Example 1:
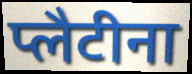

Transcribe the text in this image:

प्लैटीना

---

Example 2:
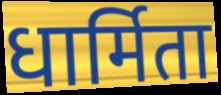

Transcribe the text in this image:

धार्मिता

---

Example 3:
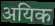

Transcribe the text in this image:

अयिक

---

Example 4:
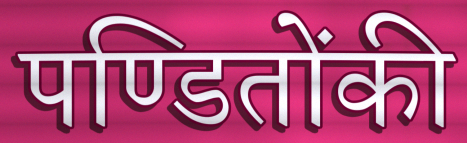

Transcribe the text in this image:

पण्डितोंकी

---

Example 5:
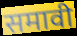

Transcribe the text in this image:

समावी